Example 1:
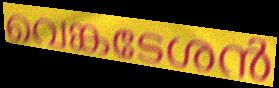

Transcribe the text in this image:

വെങ്കടേശൻ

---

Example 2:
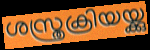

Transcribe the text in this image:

ശസ്ത്രക്രിയയ്ക്കു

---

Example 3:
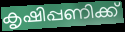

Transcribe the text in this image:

കൃഷിപ്പണിക്ക്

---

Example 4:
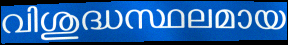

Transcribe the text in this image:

വിശുദ്ധസ്ഥലമായ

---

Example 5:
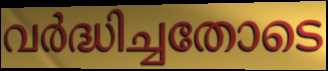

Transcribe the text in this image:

വർദ്ധിച്ചതോടെ